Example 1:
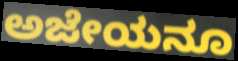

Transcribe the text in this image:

ಅಜೇಯನೂ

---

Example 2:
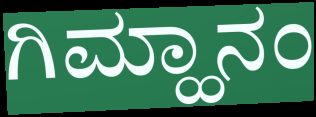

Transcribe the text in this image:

ಗಿಮ್ಹಾನಂ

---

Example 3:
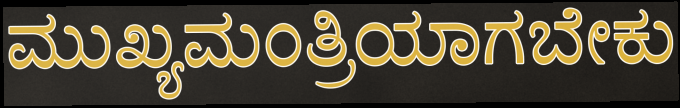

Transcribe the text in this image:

ಮುಖ್ಯಮಂತ್ರಿಯಾಗಬೇಕು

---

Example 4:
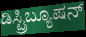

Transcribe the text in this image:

ಡಿಸ್ಟ್ರಿಬ್ಯೂಷನ್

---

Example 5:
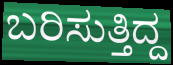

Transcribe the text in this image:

ಬರಿಸುತ್ತಿದ್ದ